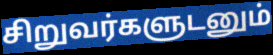
சிறுவர்களுடனும்